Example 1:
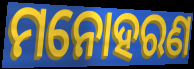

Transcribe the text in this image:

ମନୋହରଣ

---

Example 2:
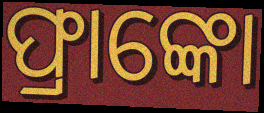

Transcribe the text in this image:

ଫ୍ରାଙ୍କୋ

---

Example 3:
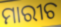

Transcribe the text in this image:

ମାରୀଚ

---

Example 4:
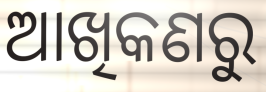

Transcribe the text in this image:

ଆଖିକଣରୁ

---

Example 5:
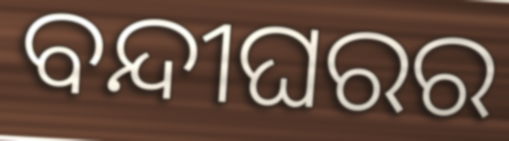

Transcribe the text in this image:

ବନ୍ଦୀଘରର